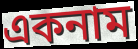
একনাম